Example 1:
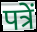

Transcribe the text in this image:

पत्रें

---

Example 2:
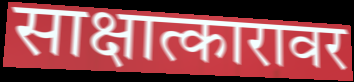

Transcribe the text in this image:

साक्षात्कारावर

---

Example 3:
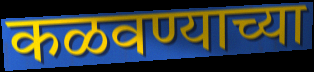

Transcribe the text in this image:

कळवण्याच्या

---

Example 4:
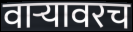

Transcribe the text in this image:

वाऱ्यावरच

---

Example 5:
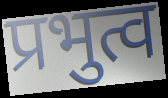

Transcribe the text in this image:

प्रभुत्व